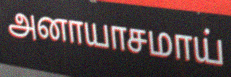
அனாயாசமாய்